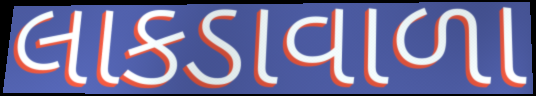
લાકડાવાળા